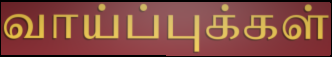
வாய்ப்புக்கள்